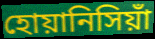
হোয়ানিসিয়াঁ